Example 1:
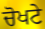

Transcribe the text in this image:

ਚੋਖਟੇ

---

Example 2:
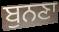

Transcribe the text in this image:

ਬੁਨਣਾ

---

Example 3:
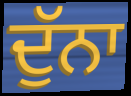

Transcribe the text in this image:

ਦੁੱਨਾ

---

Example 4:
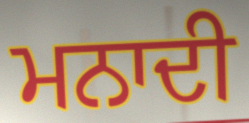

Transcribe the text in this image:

ਮਨਾਦੀ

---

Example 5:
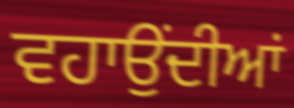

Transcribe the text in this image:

ਵਹਾਉਂਦੀਆਂ